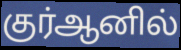
குர்ஆனில்